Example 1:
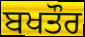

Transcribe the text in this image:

ਬਖਤੌਰ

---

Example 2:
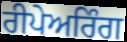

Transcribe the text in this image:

ਰੀਪੇਅਰਿੰਗ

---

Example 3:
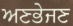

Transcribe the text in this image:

ਅਣਭੇਜਣ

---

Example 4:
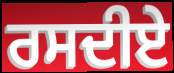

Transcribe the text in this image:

ਰਸਦੀਏ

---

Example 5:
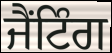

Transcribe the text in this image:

ਜੈਂਟਿੰਗ